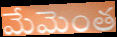
మేమెంత